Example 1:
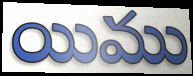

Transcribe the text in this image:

యిము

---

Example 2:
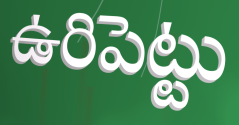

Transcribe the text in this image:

ఉరిపెట్టు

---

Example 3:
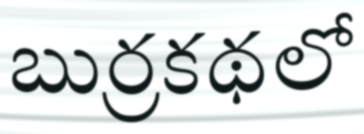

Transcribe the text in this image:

బుర్రకథలో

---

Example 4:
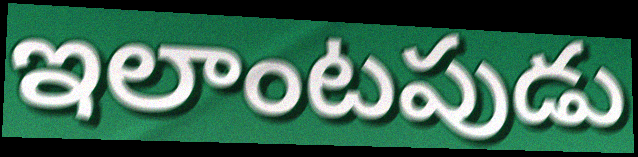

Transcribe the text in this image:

ఇలాంటపుడు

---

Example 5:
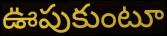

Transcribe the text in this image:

ఊపుకుంటూ